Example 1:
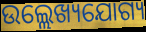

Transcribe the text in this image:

ଉଲ୍ଲେଖ୍ୟଯୋଗ୍ୟ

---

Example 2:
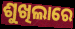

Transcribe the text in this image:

ଶୁଖିଲାରେ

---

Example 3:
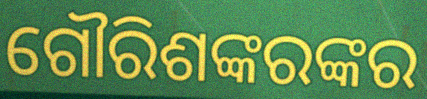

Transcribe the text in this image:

ଗୌରିଶଙ୍କରଙ୍କର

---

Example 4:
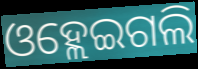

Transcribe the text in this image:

ଓହ୍ଲେଇଗଲି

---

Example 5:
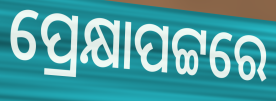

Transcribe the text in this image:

ପ୍ରେକ୍ଷାପଟ୍ଟରେ